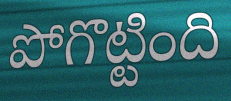
పోగొట్టింది